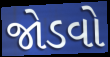
જોડવો